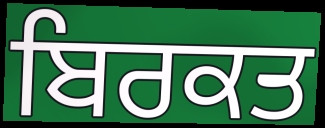
ਬਿਰਕਤ